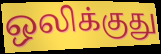
ஒலிக்குது